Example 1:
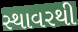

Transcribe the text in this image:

સ્થાવરથી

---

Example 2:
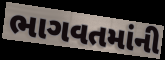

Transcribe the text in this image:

ભાગવતમાંની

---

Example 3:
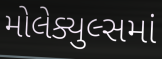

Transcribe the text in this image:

મોલેક્યુલ્સમાં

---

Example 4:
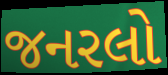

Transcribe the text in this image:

જનરલો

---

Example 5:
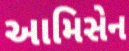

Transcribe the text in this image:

આમિસેન